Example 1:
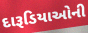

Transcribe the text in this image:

દારૂડિયાઓની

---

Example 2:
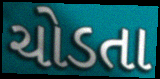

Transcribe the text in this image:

ચોડતા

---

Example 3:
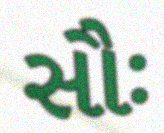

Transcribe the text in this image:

સૌઃ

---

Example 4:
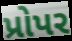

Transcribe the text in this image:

પ્રોપર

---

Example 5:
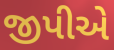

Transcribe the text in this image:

જીપીએ